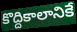
కొద్దికాలానికే